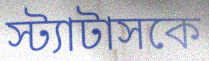
স্ট্যাটাসকে